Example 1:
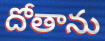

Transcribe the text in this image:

దోతాను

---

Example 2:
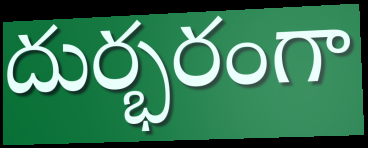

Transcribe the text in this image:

దుర్భరంగా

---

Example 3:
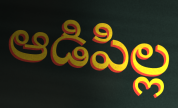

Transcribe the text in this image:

ఆడిపిల్ల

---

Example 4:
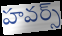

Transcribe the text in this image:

హవర్స్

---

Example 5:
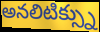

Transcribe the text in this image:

అనలిటిక్స్ను